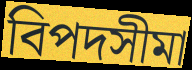
বিপদসীমা